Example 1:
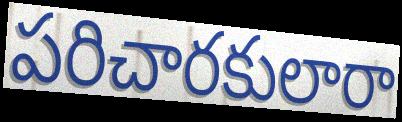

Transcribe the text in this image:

పరిచారకులారా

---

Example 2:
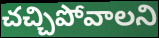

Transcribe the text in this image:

చచ్చిపోవాలని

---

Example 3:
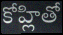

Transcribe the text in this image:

కోహ్లితో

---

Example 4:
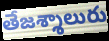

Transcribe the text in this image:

తేజశ్శాలురు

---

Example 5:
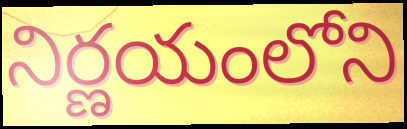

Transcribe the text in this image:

నిర్ణయంలోని